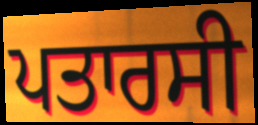
ਪਤਾਰਸੀ